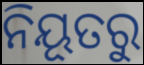
ନିୟୂତରୁ